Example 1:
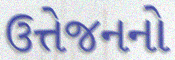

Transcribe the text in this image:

ઉત્તેજનનો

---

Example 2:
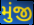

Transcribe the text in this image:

મુંજી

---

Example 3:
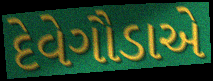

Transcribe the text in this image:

દેવેગૌડાએ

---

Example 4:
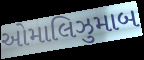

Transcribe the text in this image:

ઓમાલિઝુમાબ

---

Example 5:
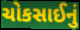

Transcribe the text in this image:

ચોકસાઈનું